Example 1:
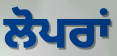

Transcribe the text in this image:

ਲੋਪਰਾਂ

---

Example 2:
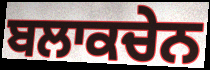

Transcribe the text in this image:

ਬਲਾਕਚੇਨ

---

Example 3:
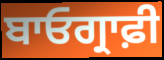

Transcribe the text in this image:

ਬਾਓਗ੍ਰਾਫ਼ੀ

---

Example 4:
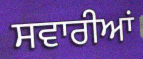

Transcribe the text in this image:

ਸਵਾਰੀਆਂ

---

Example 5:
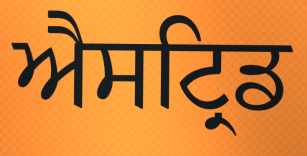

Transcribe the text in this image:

ਐਸਟ੍ਰਿਡ